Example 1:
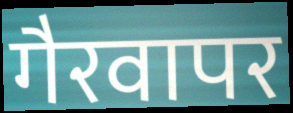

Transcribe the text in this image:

गैरवापर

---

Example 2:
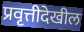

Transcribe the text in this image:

प्रवृत्तीदेखील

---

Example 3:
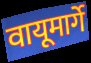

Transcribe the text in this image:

वायूमार्गे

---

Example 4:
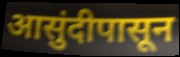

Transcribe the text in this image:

आसुंदीपासून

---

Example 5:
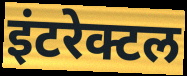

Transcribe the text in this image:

इंटरेक्टल